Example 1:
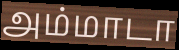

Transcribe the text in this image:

அம்மாடா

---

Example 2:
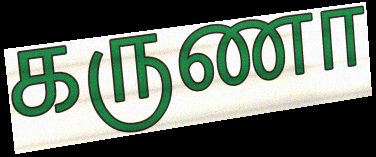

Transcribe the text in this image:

கருணா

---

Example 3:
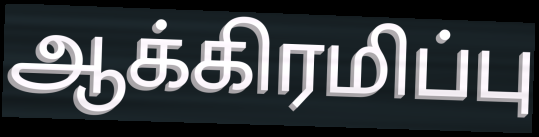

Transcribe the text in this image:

ஆக்கிரமிப்பு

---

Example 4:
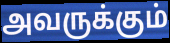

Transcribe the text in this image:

அவருக்கும்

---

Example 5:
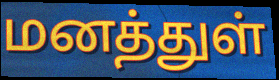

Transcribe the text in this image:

மனத்துள்